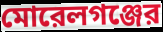
মোরেলগঞ্জের